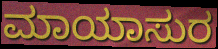
ಮಾಯಾಸುರ